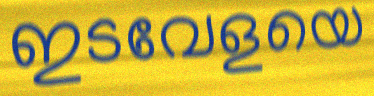
ഇടവേളയെ